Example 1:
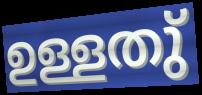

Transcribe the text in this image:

ഉള്ളതു്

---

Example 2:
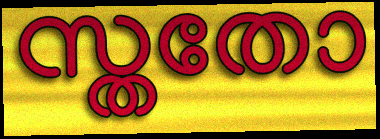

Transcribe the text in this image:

സ്തതോ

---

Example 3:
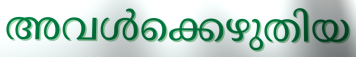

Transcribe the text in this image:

അവൾക്കെഴുതിയ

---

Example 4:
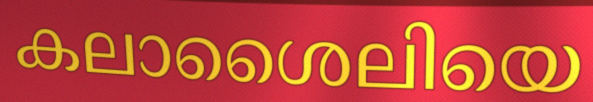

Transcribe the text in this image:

കലാശൈലിയെ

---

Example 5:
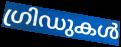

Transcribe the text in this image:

ഗ്രിഡുകൾ